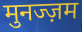
मुनज्ज़म